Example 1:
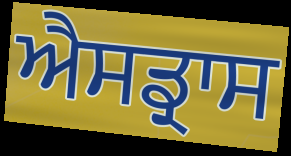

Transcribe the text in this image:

ਐਸਡ੍ਰਾਸ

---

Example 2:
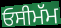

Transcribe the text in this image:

ਓਸੀਮੱਮ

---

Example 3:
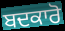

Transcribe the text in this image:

ਬਦਕਾਰੋ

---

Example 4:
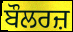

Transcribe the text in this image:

ਬੌਲਰਜ਼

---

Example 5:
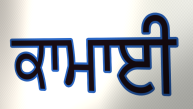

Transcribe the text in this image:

ਕਾਮਾਈ